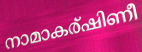
നാമാകര്ഷിണീ